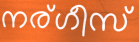
നര്ഗീസ്